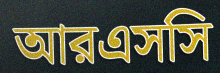
আরএসসি